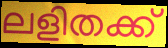
ലളിതക്ക്